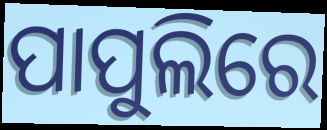
ପାପୁଲିରେ